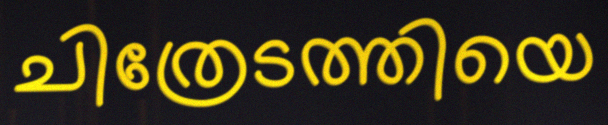
ചിത്രേടത്തിയെ